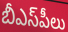
బీఎస్‌పీలు